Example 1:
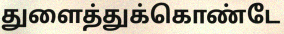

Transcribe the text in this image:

துளைத்துக்கொண்டே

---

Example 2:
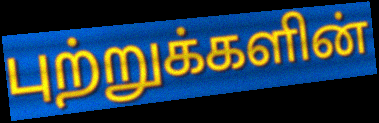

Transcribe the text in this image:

புற்றுக்களின்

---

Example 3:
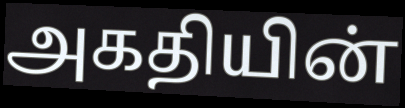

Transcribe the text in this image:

அகதியின்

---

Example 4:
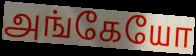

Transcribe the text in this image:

அங்கேயோ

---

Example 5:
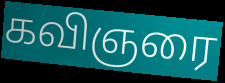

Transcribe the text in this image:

கவிஞரை